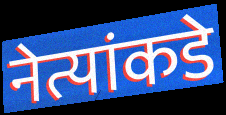
नेत्यांकडे